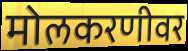
मोलकरणीवर